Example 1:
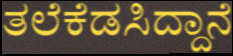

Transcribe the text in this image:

ತಲೆಕೆಡಸಿದ್ದಾನೆ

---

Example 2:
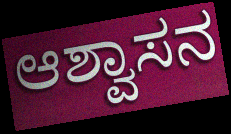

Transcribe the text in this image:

ಆಶ್ವಾಸನ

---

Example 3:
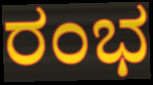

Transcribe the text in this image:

ರಂಭ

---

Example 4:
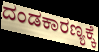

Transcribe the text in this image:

ದಂಡಕಾರಣ್ಯಕ್ಕೆ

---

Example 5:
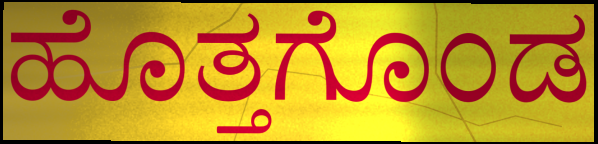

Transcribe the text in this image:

ಹೊತ್ತಗೊಂಡ